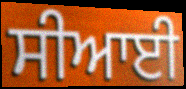
ਸੀਆਈ